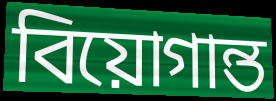
বিয়োগান্ত